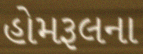
હોમરૂલના